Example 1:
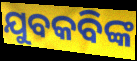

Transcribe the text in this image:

ଯୁବକବିଙ୍କ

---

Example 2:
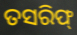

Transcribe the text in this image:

ତସରିଫ୍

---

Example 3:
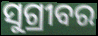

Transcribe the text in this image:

ସୁଗ୍ରୀବର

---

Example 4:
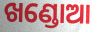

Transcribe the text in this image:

ଖଣ୍ଡୋଆ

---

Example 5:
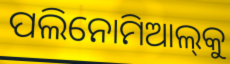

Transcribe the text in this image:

ପଲିନୋମିଆଲ୍‌କୁ